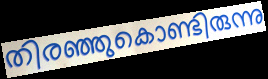
തിരഞ്ഞുകൊണ്ടിരുന്നു